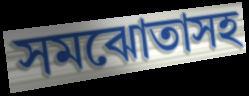
সমঝোতাসহ